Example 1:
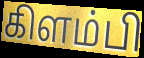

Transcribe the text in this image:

கிளம்பி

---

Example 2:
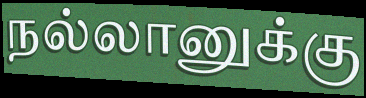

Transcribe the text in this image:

நல்லானுக்கு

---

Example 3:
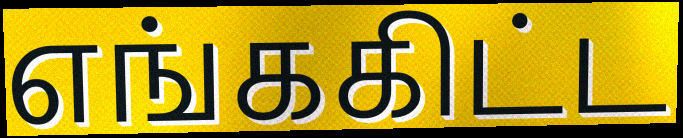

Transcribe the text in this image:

எங்ககிட்ட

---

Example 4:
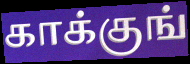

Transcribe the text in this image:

காக்குங்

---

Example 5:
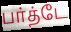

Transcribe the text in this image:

பர்த்டே